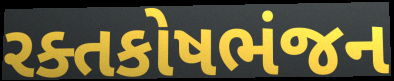
રક્તકોષભંજન